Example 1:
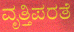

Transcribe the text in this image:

ವೃತ್ತಿಪರತೆ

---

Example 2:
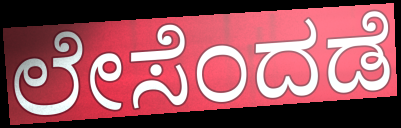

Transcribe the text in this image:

ಲೇಸೆಂದಡೆ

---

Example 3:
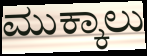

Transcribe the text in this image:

ಮುಕ್ಕಾಲು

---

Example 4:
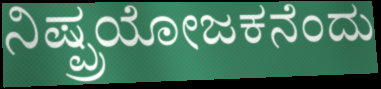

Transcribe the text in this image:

ನಿಷ್ಪ್ರಯೋಜಕನೆಂದು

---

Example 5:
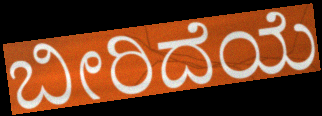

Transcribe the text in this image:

ಬೀರಿದೆಯೆ